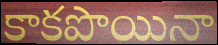
కాకపొయినా